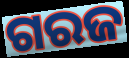
ଗରଜ